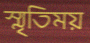
স্মৃতিময়